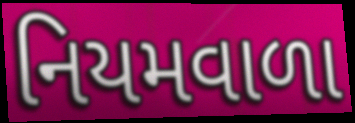
નિયમવાળા